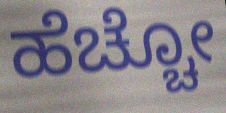
ಹೆಚ್ಚೋ